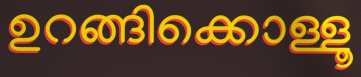
ഉറങ്ങിക്കൊള്ളൂ